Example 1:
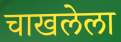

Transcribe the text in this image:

चाखलेला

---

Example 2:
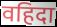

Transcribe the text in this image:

वहिदा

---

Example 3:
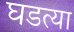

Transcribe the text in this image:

घडत्या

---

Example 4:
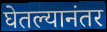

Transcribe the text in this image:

घेतल्यानंतर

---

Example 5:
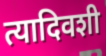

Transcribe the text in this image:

त्यादिवशी